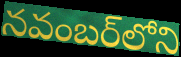
నవంబర్‌లోని